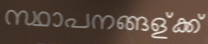
സ്ഥാപനങ്ങള്ക്ക്